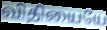
விதியையே